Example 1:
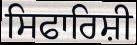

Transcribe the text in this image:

ਸਿਫਾਰਿਸ਼ੀ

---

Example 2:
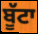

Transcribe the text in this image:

ਬੂੱਟਾ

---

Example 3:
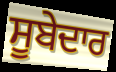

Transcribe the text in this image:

ਸੂਬੇਦਾਰ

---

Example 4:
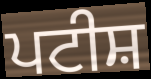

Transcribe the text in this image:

ਪਟੀਸ਼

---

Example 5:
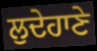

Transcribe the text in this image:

ਲੁਦੇਹਾਣੇ